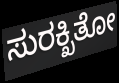
ಸುರಕ್ಖಿತೋ